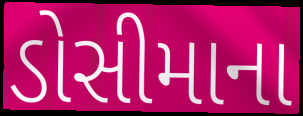
ડોસીમાના